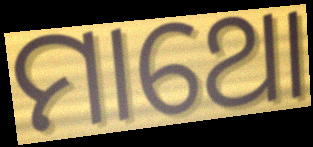
ମାଥୋ